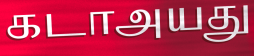
கடாஅயது